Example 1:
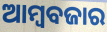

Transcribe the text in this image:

ଆମ୍ୱବଜାର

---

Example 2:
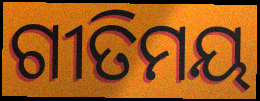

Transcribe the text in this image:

ଗୀତିମୟ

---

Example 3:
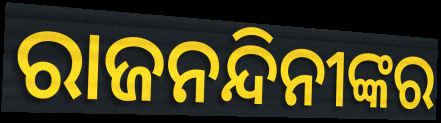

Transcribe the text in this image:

ରାଜନନ୍ଦିନୀଙ୍କର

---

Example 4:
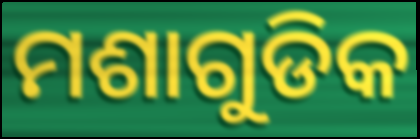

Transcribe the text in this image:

ମଶାଗୁଡିକ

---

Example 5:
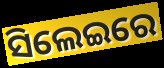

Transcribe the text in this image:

ସିଲେଇରେ